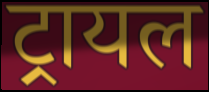
ट्रायल